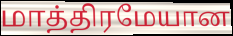
மாத்திரமேயான